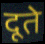
दूते